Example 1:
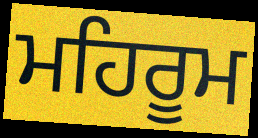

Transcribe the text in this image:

ਮਹਿਰੂਮ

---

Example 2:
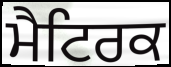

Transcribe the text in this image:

ਮੈਟਿਰਕ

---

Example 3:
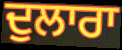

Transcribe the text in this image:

ਦੁਲਾਰਾ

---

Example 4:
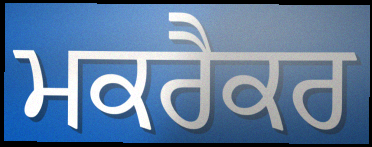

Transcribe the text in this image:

ਮਕਰੈਕਰ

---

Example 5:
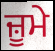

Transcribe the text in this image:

ਜ਼ੂਮੇ